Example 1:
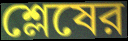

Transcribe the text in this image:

শ্লেষের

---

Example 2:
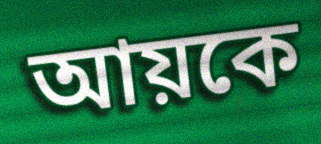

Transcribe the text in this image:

আয়কে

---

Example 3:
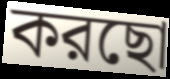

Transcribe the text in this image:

করছো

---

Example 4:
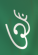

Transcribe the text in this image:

ঔঁ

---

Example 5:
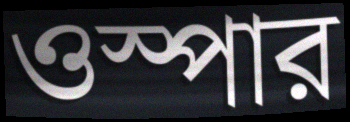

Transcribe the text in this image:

ওস্পার